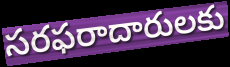
సరఫరాదారులకు